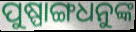
ପୁଷ୍ପାଙ୍ଗଧନୁଙ୍କ